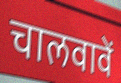
चालवावें